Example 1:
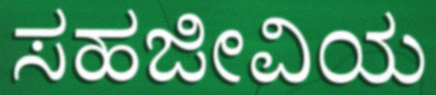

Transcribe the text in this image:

ಸಹಜೀವಿಯ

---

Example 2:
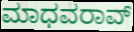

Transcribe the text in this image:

ಮಾಧವರಾವ್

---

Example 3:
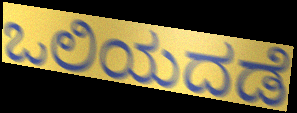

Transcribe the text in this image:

ಒಲಿಯದಡೆ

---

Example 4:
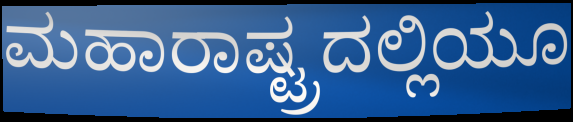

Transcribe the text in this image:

ಮಹಾರಾಷ್ಟ್ರದಲ್ಲಿಯೂ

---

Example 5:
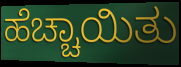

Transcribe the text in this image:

ಹೆಚ್ಚಾಯಿತು